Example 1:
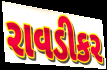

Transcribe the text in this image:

રાવડીકર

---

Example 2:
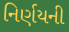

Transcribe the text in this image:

નિર્ણયની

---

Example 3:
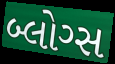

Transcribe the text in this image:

બ્લોગ્સ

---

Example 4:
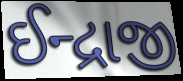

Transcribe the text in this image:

ઈન્દ્રાજી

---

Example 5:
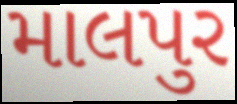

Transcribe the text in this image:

માલપુર